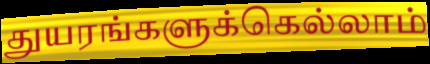
துயரங்களுக்கெல்லாம்